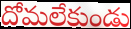
దోమలేకుండు